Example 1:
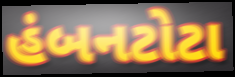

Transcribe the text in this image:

હંબનટોટા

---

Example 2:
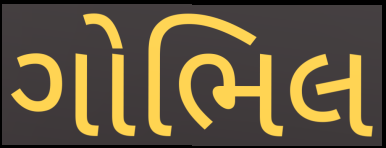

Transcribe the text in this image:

ગોભિલ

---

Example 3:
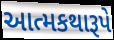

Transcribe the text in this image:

આત્મકથારૂપે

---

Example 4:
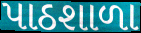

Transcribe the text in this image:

પાઠશાળા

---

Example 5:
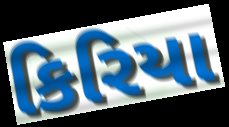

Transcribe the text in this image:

કિરિયા